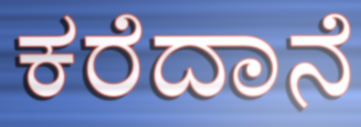
ಕರೆದಾನೆ